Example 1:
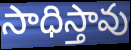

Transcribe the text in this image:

సాధిస్తావు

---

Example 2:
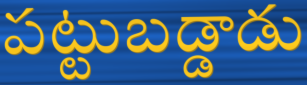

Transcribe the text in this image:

పట్టుబడ్డాడు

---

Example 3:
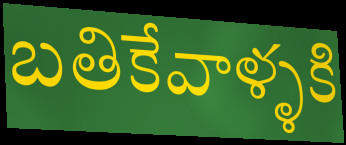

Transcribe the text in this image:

బతికేవాళ్ళకి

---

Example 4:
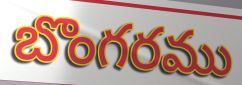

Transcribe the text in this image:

బొంగరము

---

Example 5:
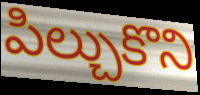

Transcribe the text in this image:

పిల్చుకొని